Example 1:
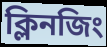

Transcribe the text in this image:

ক্লিনজিং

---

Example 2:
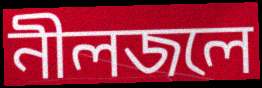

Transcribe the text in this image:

নীলজলে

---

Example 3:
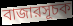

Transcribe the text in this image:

বাজারসূচক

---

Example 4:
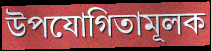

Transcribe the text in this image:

উপযোগিতামূলক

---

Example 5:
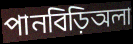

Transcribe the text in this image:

পানবিড়িঅলা